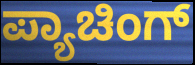
ಪ್ಯಾಚಿಂಗ್